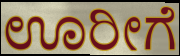
ಊರೀಗೆ